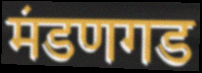
मंडणगड